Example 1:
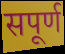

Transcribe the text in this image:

सपूर्ण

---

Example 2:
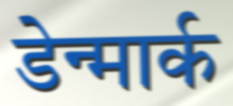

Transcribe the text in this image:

डेन्मार्क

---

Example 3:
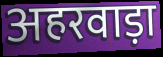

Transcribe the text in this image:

अहरवाड़ा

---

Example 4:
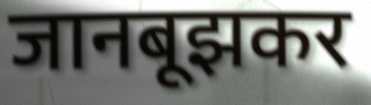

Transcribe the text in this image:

जानबूझकर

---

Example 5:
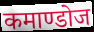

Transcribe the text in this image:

कमाण्डोज